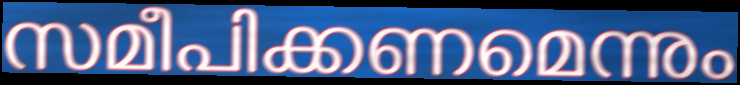
സമീപിക്കണമെന്നും